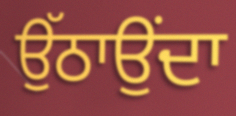
ਉੱਠਾਉਂਦਾ